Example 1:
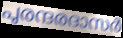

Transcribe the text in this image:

പുരന്ദരദാസർ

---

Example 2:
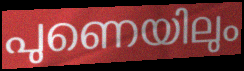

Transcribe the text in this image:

പുണെയിലും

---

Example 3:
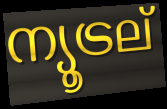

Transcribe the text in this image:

ന്യൂട്രല്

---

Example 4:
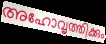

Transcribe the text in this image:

അഹോവൃത്തിക്കും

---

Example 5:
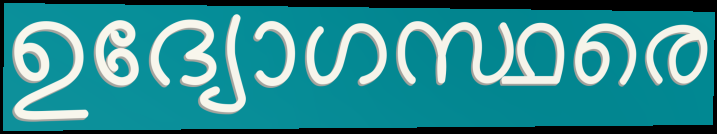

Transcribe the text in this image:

ഉദ്യോഗസ്ഥരെ